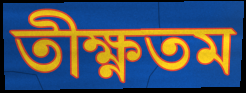
তীক্ষ্ণতম